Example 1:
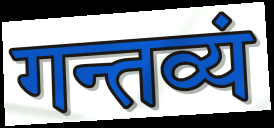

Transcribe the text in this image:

गन्तव्यं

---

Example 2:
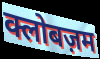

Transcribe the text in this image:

क्लोबज़म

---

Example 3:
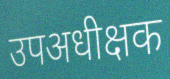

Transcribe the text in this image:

उपअधीक्षक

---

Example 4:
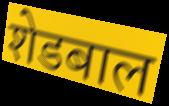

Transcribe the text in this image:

शेडबाल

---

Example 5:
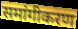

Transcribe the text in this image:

समांगीकरण